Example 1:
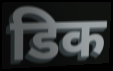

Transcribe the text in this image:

डिक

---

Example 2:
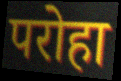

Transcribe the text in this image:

परोहा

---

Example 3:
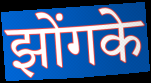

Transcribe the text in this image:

झोंगके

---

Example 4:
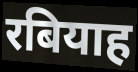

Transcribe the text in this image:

रबियाह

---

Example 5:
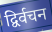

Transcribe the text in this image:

द्विर्वचन